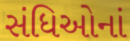
સંધિઓનાં